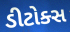
ડીટોક્સ